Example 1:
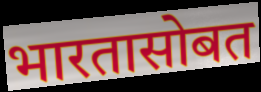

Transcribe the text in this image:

भारतासोबत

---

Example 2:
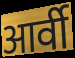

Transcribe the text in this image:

आर्वी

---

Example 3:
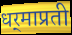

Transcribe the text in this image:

धर्माप्रती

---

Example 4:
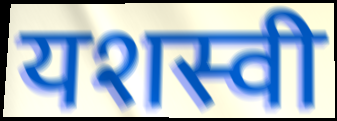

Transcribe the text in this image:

यशस्वी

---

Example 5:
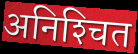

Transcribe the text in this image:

अनिश्चित